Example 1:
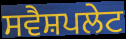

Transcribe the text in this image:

ਸਵੈਸ਼ਪਲੇਟ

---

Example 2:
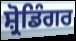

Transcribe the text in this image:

ਸ਼੍ਰੋਡਿੰਗਰ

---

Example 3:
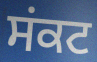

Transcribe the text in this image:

ਸਂਕਟ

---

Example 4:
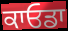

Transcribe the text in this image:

ਕਾਓਡਾ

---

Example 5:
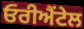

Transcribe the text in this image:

ਓਰੀਐਂਟੇਲ